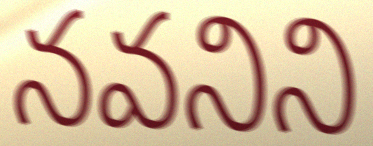
నవనిని